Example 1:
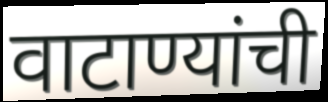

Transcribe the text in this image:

वाटाण्यांची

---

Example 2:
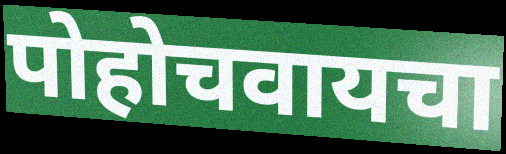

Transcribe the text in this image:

पोहोचवायचा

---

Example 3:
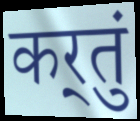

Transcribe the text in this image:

कर्तुं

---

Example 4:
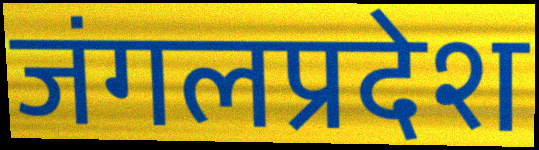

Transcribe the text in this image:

जंगलप्रदेश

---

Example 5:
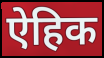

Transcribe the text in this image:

ऐहिक